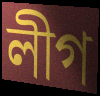
লীগ